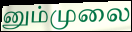
னும்முலை